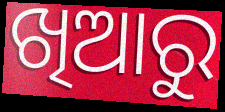
ଖିଆରୁ